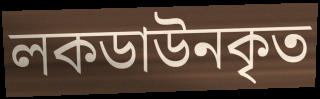
লকডাউনকৃত